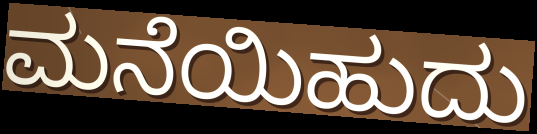
ಮನೆಯಿಹುದು